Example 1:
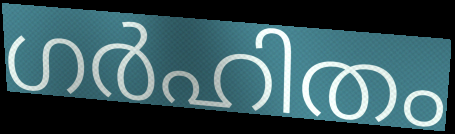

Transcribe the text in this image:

ഗർഹിതം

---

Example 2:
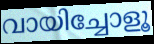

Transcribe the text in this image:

വായിച്ചോളൂ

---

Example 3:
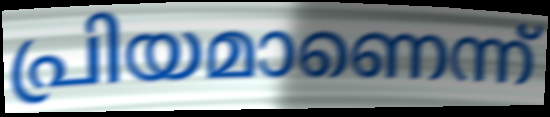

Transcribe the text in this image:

പ്രിയമാണെന്ന്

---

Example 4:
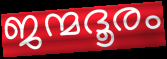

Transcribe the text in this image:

ജന്മദൂരം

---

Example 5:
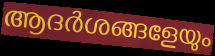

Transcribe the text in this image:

ആദർശങ്ങളേയും